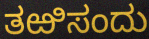
ತಱಿಸಂದು